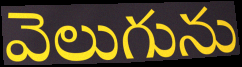
వెలుగును